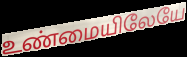
உண்மையிலேயே